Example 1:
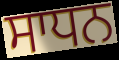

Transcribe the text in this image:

ਸਾਧਨ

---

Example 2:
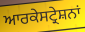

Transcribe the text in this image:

ਆਰਕੇਸਟ੍ਰੇਸ਼ਨਾਂ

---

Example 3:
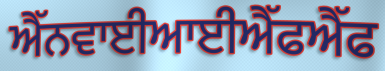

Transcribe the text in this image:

ਐੱਨਵਾਈਆਈਐੱਫਐੱਫ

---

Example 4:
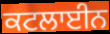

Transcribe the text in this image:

ਕਟਲਾਈਨ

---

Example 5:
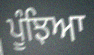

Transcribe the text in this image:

ਪੂੰਝਿਆ